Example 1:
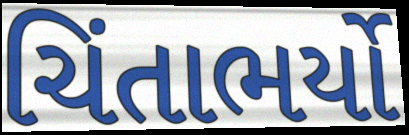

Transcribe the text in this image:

ચિંતાભર્યો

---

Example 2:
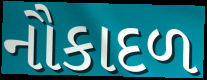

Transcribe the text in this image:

નૌકાદળ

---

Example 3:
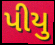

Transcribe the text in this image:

પીયુ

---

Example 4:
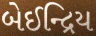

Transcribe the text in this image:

બેઈન્દ્રિય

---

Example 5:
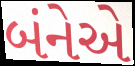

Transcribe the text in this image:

બંનેએ